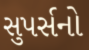
સુપર્સનો